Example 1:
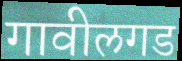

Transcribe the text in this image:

गावीलगड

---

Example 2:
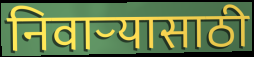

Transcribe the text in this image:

निवाऱ्यासाठी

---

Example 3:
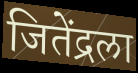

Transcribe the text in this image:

जितेंद्रला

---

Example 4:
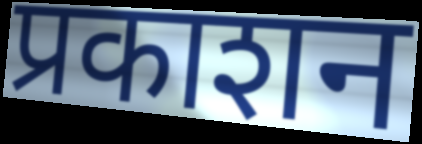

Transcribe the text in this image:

प्रकाशन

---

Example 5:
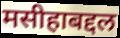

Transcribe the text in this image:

मसीहाबद्दल